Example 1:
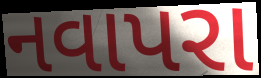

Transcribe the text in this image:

નવાપરા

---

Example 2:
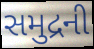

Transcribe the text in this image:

સમુદ્રની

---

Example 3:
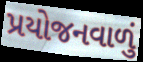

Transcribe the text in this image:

પ્રયોજનવાળું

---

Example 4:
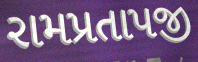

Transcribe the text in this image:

રામપ્રતાપજી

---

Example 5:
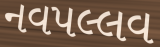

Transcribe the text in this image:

નવપલ્લવ